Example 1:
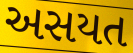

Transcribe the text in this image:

અસયત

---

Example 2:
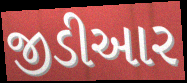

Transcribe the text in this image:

જીડીઆર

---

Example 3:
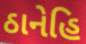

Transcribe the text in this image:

ઠાનેહિ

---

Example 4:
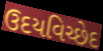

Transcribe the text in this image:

ઉદયવિચ્છેદ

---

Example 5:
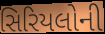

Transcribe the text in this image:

સિરિયલોની